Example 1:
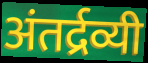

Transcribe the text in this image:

अंतर्द्रव्यी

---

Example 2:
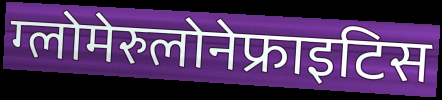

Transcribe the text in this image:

ग्लोमेरुलोनेफ्राइटिस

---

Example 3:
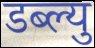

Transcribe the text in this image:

डब्ल्यु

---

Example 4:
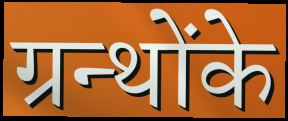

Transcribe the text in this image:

ग्रन्थोंके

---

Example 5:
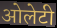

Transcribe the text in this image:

ओलेटी